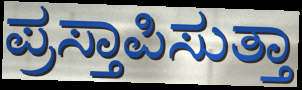
ಪ್ರಸ್ತಾಪಿಸುತ್ತಾ